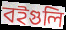
বইগুলি